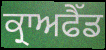
ਕ੍ਰਾਅਫੈੱਡ